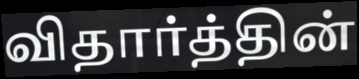
விதார்த்தின்